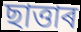
ছাত্তাৰ